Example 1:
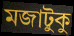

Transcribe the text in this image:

মজাটুকু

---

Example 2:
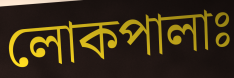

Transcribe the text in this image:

লোকপালাঃ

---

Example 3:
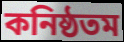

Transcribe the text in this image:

কনিষ্ঠতম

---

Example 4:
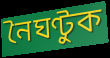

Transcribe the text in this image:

নৈঘণ্টুক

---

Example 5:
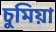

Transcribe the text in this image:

চুমিয়া